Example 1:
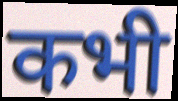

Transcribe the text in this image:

कभी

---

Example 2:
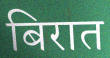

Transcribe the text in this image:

बिरात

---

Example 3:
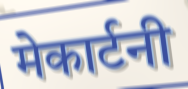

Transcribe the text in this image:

मेकार्टनी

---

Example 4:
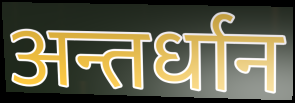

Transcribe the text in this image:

अन्तर्धान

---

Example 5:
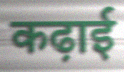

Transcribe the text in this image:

कढ़ाई